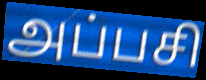
அப்பசி